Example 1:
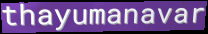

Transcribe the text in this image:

thayumanavar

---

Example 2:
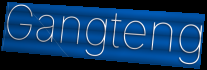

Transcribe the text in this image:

Gangteng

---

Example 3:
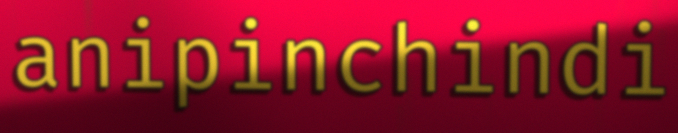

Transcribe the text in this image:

anipinchindi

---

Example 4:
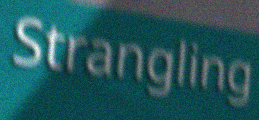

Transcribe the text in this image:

Strangling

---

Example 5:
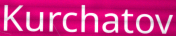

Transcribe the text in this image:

Kurchatov